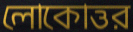
লোকোত্তর